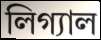
লিগ্যাল